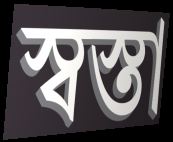
স্বস্তা